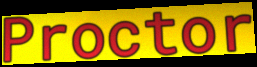
Proctor